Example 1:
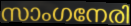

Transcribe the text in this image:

സാംഗനേരി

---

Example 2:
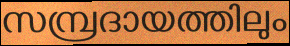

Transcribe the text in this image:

സമ്പ്രദായത്തിലും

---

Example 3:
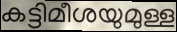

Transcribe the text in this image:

കട്ടിമീശയുമുള്ള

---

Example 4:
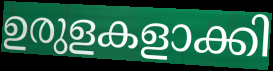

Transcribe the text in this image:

ഉരുളകളാക്കി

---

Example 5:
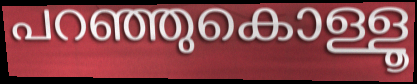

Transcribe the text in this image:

പറഞ്ഞുകൊള്ളൂ